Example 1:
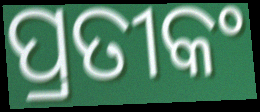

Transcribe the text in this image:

ପ୍ରତୀକଂ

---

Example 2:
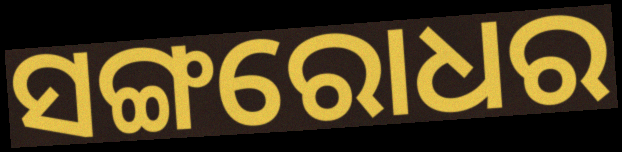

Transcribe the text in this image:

ସଙ୍ଗରୋଧର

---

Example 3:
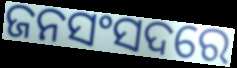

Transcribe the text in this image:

ଜନସଂସଦରେ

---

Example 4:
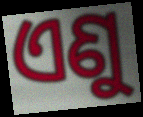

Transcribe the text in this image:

ଏଣୁ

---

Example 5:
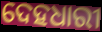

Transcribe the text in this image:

ଦେହଧାରୀ